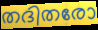
തദിതരോ